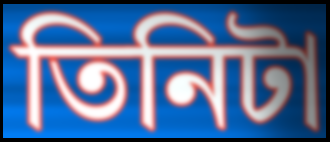
তিনিটা